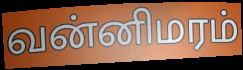
வன்னிமரம்